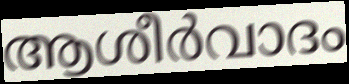
ആശീർവാദം